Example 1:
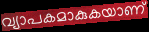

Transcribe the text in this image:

വ്യാപകമാകുകയാണ്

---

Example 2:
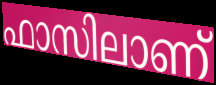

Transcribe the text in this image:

ഫാസിലാണ്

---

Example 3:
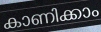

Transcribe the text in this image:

കാണിക്കാം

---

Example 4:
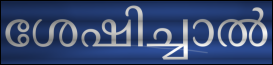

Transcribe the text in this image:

ശേഷിച്ചാൽ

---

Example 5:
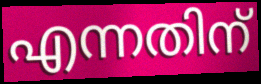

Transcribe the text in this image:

എന്നതിന്